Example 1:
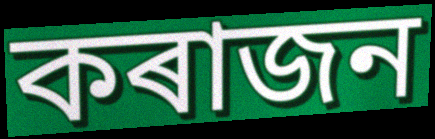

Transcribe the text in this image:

কৰাজন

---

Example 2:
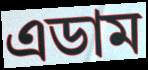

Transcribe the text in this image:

এডাম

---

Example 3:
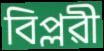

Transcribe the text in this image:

বিপ্লৱী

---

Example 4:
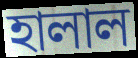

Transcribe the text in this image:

হালাল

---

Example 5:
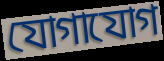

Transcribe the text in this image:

যোগাযোগ